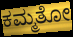
ಕಮ್ಮತೋ